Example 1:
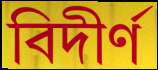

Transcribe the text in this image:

বিদীর্ণ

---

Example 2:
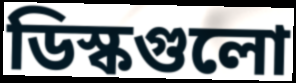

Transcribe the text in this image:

ডিস্কগুলো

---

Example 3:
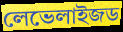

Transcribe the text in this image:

লেভেলাইজড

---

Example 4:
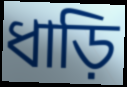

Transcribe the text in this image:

ধাড়ি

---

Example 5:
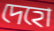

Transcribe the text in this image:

দেহো